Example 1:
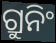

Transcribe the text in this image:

ଗ୍ରୁନିଂ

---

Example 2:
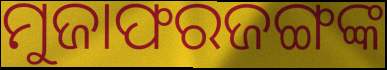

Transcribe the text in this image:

ମୁଜାଫରଜଙ୍ଗଙ୍କ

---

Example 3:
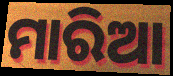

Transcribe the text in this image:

ମାରିଆ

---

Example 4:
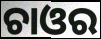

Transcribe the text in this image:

ଚାଓର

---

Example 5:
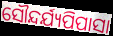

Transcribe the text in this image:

ସୌନ୍ଦର୍ଯ୍ୟପିପାସା